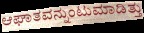
ಆಘಾತವನ್ನುಂಟುಮಾಡಿತ್ತು